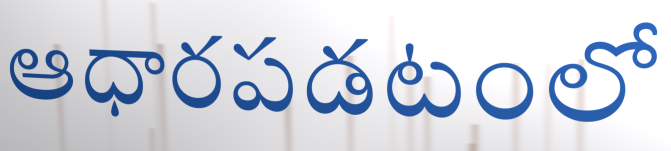
ఆధారపడటంలో